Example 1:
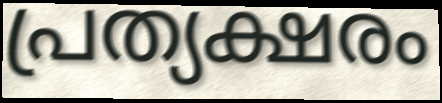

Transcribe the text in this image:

പ്രത്യക്ഷരം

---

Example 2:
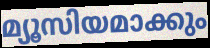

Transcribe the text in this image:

മ്യൂസിയമാക്കും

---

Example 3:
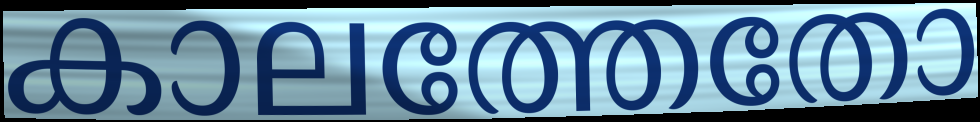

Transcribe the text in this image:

കാലത്തേതോ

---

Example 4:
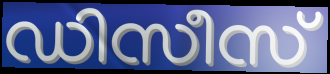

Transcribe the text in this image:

ഡിസീസ്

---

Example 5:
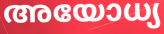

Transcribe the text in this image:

അയോധ്യ